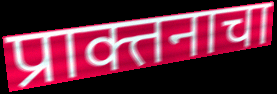
प्राक्तनाचा